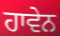
ਹਾਵੇਨ